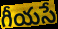
గీయసే